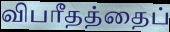
விபரீதத்தைப்